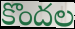
కొందల